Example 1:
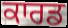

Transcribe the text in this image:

ਕਾਰਡ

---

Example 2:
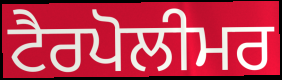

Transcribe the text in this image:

ਟੈਰਪੋਲੀਮਰ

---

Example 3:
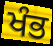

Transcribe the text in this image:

ਖੰਭ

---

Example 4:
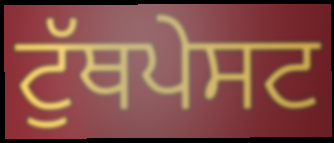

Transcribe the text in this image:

ਟੁੱਥਪੇਸਟ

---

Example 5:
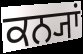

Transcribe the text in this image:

ਕਨ੍ਯਾਂ